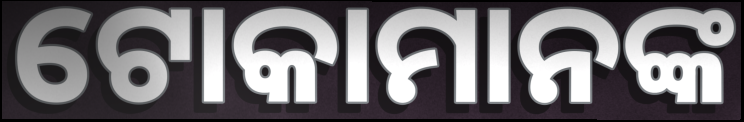
ଟୋକାମାନଙ୍କ